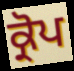
ਕ੍ਰੋਪ